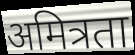
अमित्रता